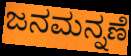
ಜನಮನ್ನಣೆ